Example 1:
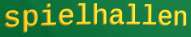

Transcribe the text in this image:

spielhallen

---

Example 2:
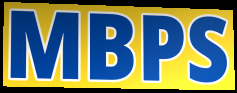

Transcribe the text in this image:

MBPS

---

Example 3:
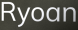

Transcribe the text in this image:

Ryoan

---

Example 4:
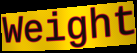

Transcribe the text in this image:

Weight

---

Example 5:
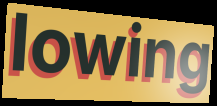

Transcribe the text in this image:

lowing